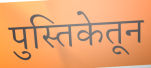
पुस्तिकेतून